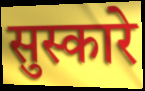
सुस्कारे